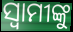
ସ୍ବାମୀଙ୍କୁ